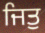
ਜਿਤੁ